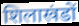
शिलाखंडों